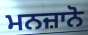
ਮਨਜ਼ਾਨੋ